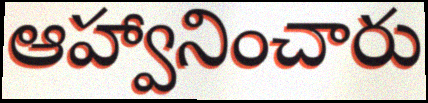
ఆహ్వానించారు